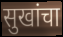
सुखांचा